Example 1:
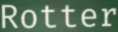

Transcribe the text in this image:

Rotter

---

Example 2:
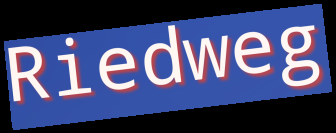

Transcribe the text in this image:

Riedweg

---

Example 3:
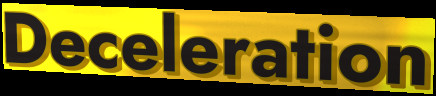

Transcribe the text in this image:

Deceleration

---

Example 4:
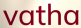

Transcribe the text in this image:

vatha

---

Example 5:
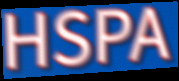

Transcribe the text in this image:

HSPA